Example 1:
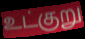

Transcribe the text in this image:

உட்குறு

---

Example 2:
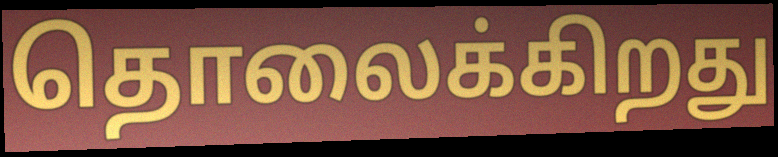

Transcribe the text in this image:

தொலைக்கிறது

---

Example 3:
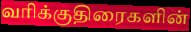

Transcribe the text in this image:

வரிக்குதிரைகளின்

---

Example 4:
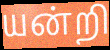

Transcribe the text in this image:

யன்றி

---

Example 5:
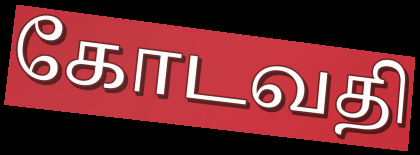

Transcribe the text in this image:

கோடவதி